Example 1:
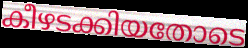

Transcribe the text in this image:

കീഴടക്കിയതോടെ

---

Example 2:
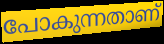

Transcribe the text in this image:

പോകുന്നതാണ്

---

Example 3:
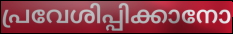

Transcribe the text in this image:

പ്രവേശിപ്പിക്കാനോ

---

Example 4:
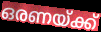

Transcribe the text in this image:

ഒരണയ്ക്ക്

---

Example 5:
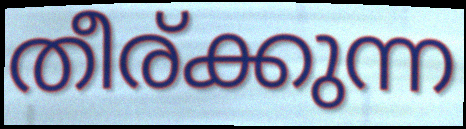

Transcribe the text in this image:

തീര്ക്കുന്ന